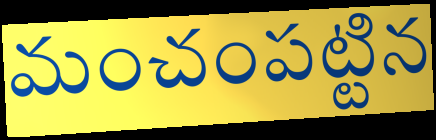
మంచంపట్టిన